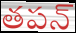
తపన్